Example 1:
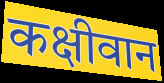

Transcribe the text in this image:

कक्षीवान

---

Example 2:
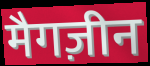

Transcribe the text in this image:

मैगज़ीन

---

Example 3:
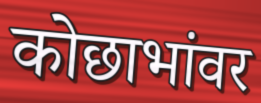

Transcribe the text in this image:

कोछाभांवर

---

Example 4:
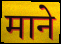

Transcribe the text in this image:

माने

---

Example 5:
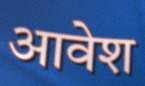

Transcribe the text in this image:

आवेश